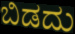
ಬಿಡದು